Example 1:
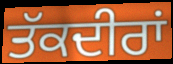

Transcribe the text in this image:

ਤੱਕਦੀਰਾਂ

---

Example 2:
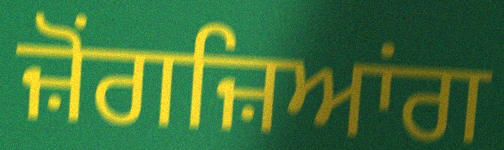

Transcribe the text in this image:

ਜ਼ੋਂਗਜ਼ਿਆਂਗ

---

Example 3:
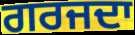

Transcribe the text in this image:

ਗਰਜਦਾ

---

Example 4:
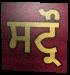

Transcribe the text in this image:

ਸਟ੍ਰੌ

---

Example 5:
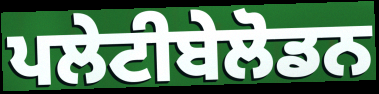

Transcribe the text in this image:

ਪਲੇਟੀਬੇਲੋਡਨ